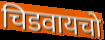
चिडवायचो